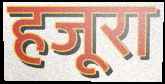
हजूरा